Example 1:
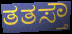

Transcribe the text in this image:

ತತಸ್ತೌ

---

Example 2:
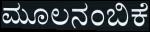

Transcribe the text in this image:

ಮೂಲನಂಬಿಕೆ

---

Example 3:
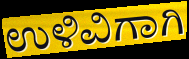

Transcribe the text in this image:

ಉಳಿವಿಗಾಗಿ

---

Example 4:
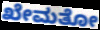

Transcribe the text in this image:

ಖೇಮತೋ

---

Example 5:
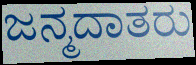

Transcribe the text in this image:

ಜನ್ಮದಾತರು